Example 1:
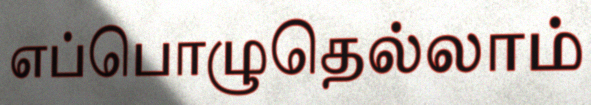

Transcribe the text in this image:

எப்பொழுதெல்லாம்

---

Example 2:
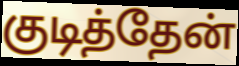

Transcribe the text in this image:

குடித்தேன்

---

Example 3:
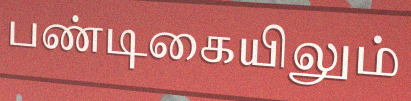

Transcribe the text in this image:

பண்டிகையிலும்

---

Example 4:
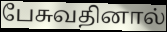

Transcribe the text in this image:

பேசுவதினால்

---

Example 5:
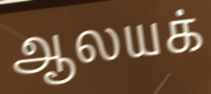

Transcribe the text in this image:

ஆலயக்